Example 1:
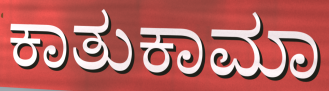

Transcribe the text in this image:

ಕಾತುಕಾಮಾ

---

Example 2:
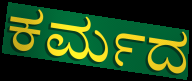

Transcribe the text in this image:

ಕರ್ಮದ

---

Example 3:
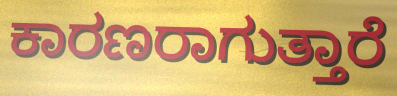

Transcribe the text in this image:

ಕಾರಣರಾಗುತ್ತಾರೆ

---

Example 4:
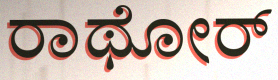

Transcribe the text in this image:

ರಾಥೋರ್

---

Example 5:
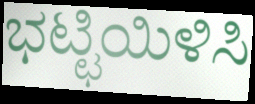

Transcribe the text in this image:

ಭಟ್ಟಿಯಿಳಿಸಿ